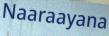
Naaraayana